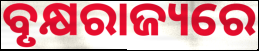
ବୃକ୍ଷରାଜ୍ୟରେ